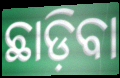
ଛାଡ଼ିବା